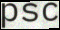
psc